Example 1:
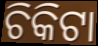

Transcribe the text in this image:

ଚିକିଟା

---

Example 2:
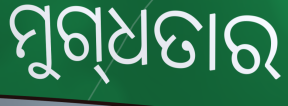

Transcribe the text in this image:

ମୁଗ୍‍ଧତାର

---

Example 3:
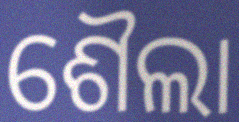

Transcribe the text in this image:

ଶୈଲା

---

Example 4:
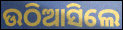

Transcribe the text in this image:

ଉଠିଆସିଲେ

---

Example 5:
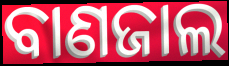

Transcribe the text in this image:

ବାଣଜାଲ